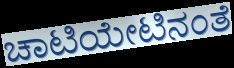
ಚಾಟಿಯೇಟಿನಂತೆ